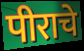
पीराचे